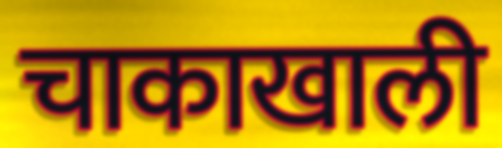
चाकाखाली